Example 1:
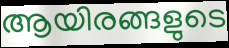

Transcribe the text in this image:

ആയിരങ്ങളുടെ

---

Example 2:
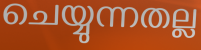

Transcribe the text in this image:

ചെയ്യുന്നതല്ല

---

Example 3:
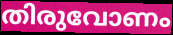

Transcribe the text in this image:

തിരുവോണം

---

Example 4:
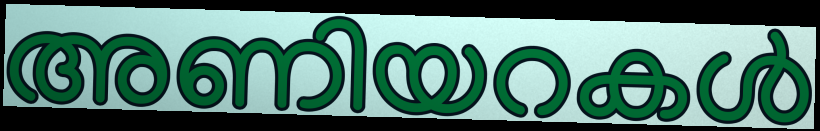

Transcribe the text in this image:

അണിയറകൾ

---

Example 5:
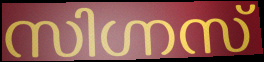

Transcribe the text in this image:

സിഗ്നസ്